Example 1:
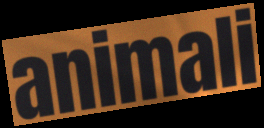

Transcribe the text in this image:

animali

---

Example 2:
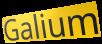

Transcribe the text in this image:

Galium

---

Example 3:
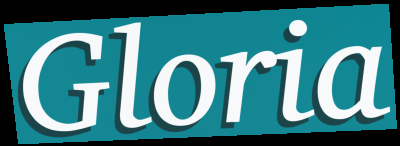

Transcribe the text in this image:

Gloria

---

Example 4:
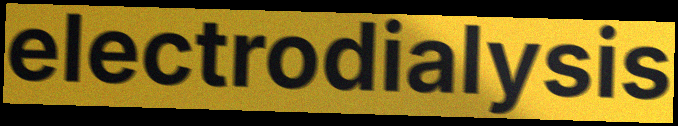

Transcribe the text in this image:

electrodialysis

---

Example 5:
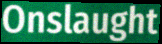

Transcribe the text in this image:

Onslaught